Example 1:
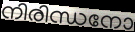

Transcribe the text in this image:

നിരിന്ധനോ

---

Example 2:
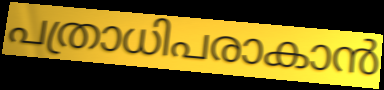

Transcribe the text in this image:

പത്രാധിപരാകാൻ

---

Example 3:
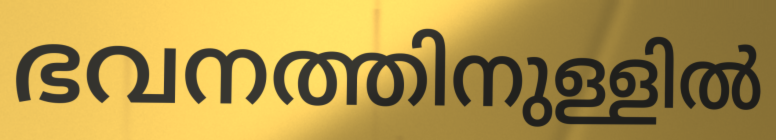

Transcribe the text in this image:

ഭവനത്തിനുള്ളിൽ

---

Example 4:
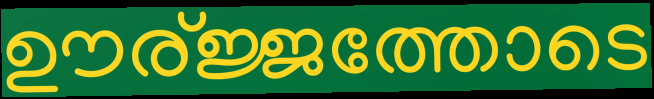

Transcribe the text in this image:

ഊര്ജ്ജത്തോടെ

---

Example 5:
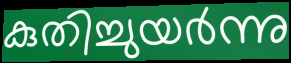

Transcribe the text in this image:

കുതിച്ചുയർന്നു